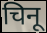
चिनू